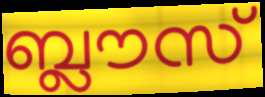
ബ്ലൗസ്